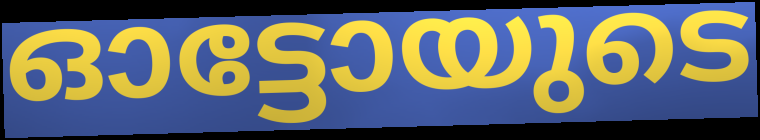
ഓട്ടോയുടെ